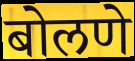
बोलणे